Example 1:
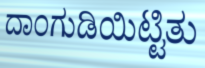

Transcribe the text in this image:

ದಾಂಗುಡಿಯಿಟ್ಟಿತು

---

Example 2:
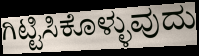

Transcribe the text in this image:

ಗಿಟ್ಟಿಸಿಕೊಳ್ಳುವುದು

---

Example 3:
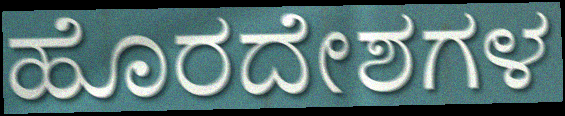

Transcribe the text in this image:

ಹೊರದೇಶಗಳ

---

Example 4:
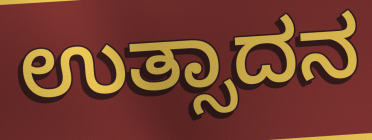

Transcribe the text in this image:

ಉತ್ಸಾದನ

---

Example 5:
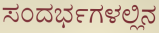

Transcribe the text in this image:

ಸಂದರ್ಭಗಳಲ್ಲಿನ